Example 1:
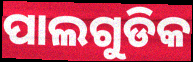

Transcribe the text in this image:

ପାଲଗୁଡିକ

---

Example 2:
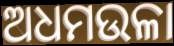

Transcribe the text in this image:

ଅଧମଉଳା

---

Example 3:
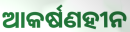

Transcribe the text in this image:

ଆକର୍ଷଣହୀନ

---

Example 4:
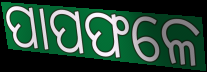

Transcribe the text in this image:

ପାପଫଳେ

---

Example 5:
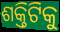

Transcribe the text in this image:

ଶକ୍ତିଟିକୁ